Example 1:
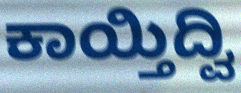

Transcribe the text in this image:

ಕಾಯ್ತಿದ್ವಿ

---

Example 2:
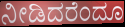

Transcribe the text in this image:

ನೀಡಿದರೆಂದೂ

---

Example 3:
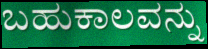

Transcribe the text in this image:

ಬಹುಕಾಲವನ್ನು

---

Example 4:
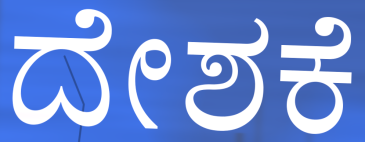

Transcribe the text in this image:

ದೇಶಕೆ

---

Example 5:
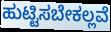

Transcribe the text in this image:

ಹುಟ್ಟಿಸಬೇಕಲ್ಲವೆ